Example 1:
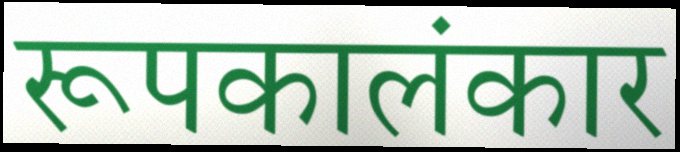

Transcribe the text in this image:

रूपकालंकार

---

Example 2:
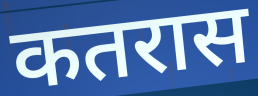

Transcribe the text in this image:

कतरास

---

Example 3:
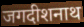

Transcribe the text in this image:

जगदीशनाथ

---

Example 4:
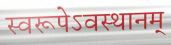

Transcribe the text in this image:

स्वरूपेऽवस्थानम्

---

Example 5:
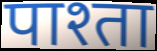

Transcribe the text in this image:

पाश्ता